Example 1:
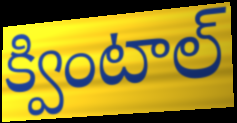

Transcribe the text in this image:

క్వింటాల్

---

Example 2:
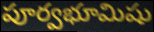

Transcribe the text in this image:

పూర్వభూమిషు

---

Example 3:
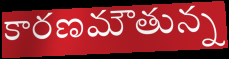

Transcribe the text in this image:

కారణమౌతున్న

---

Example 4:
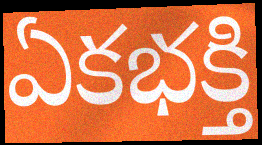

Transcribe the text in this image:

ఏకభక్తి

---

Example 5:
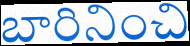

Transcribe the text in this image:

బారినించి